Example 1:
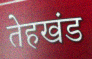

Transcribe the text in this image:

तेहखंड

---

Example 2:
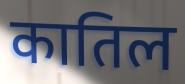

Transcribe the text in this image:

कातिल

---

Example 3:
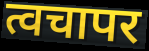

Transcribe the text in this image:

त्वचापर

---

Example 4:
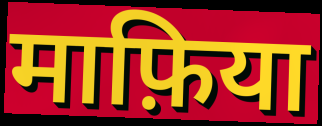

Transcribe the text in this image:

माफ़िया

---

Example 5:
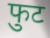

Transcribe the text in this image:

फुट